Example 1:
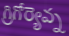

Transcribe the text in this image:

గ్రిగోర్యెవ్న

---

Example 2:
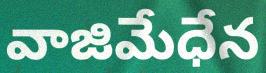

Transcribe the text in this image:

వాజిమేధేన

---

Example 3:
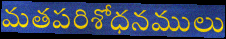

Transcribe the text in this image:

మతపరిశోధనములు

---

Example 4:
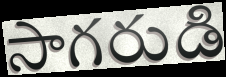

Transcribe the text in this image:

సాగరుడి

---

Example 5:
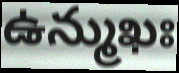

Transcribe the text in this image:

ఉన్ముఖః